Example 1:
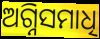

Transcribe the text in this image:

ଅଗ୍ନିସମାଧି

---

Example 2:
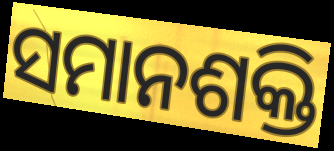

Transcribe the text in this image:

ସମାନଶକ୍ତି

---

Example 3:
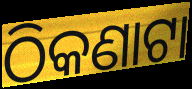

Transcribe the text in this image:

ଠିକଣାଟା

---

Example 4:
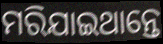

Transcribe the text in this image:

ମରିଯାଇଥାନ୍ତେ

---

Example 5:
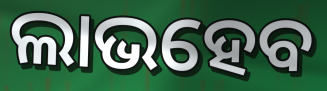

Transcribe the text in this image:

ଲାଭହେବ